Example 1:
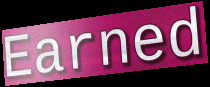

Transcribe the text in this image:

Earned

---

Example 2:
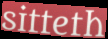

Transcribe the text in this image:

sitteth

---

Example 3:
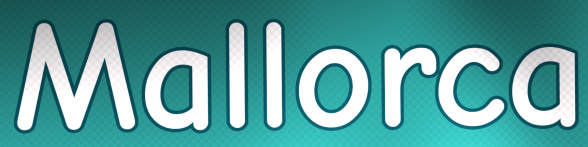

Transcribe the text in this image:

Mallorca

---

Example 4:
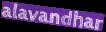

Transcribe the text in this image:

alavandhar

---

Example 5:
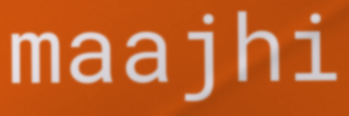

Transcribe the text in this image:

maajhi